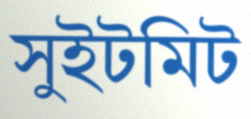
সুইটমিট